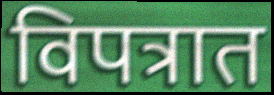
विपत्रात